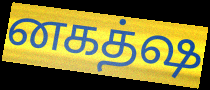
னகத்ஷ